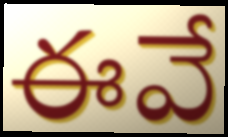
ఈవే